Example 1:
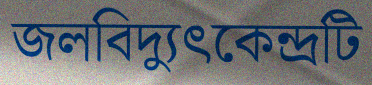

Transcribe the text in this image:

জলবিদ্যুৎকেন্দ্রটি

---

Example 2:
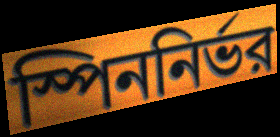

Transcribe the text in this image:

স্পিননির্ভর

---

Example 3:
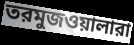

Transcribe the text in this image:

তরমুজওয়ালারা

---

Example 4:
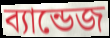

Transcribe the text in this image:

ব্যান্ডেজ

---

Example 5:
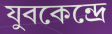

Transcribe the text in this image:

যুবকেন্দ্রে